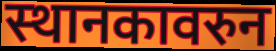
स्थानकावरुन